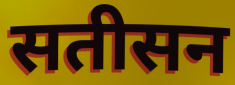
सतीसन